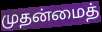
முதன்மைத்